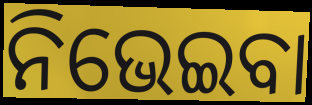
ନିଭେଇବା